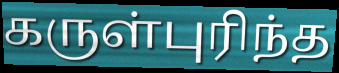
கருள்புரிந்த